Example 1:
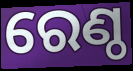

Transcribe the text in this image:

ରେଣ୍ଠ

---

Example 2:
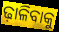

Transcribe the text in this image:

ଢ଼ାଳିବାକୁ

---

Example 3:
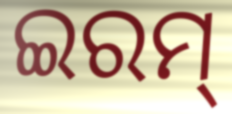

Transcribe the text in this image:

ଇରମ୍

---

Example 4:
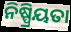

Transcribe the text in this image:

ନିଷ୍ପ୍ରିୟତା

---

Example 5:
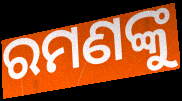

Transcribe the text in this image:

ରମଣଙ୍କୁ